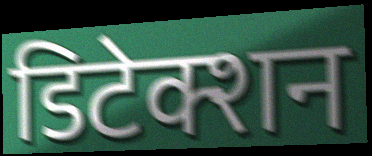
डिटेक्शन